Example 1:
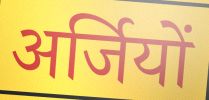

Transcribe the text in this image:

अर्जियों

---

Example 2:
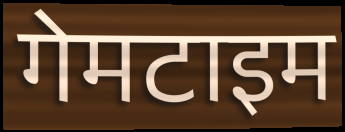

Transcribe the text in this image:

गेमटाइम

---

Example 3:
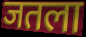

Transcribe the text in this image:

जतला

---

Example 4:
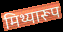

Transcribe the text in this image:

मिथ्यारूप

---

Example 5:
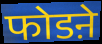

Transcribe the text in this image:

फोडऩे